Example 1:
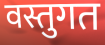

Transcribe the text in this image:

वस्तुगत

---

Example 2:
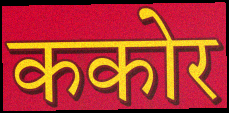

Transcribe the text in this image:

ककोर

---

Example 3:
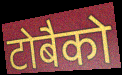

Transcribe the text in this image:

टोबैको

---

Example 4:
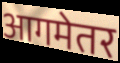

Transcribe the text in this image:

आगमेतर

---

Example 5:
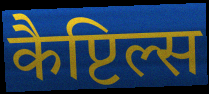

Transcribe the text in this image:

कैप्टिल्स